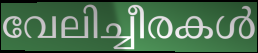
വേലിച്ചീരകൾ